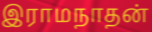
இராமநாதன்